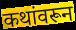
कथांवरून